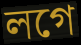
লগে